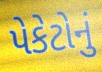
પેકેટોનું